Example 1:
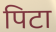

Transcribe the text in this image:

पिटा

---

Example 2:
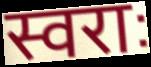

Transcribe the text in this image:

स्वराः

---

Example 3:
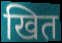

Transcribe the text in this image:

खित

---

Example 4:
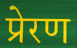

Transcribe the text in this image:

प्रेरण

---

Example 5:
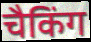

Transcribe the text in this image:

चैकिंग